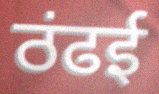
ठंढई